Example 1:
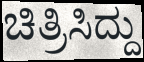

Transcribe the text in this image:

ಚಿತ್ರಿಸಿದ್ದು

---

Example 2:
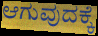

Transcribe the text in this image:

ಆಗುವುದಕ್ಕೆ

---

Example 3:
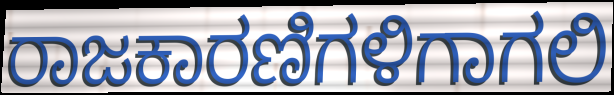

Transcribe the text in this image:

ರಾಜಕಾರಣಿಗಳಿಗಾಗಲಿ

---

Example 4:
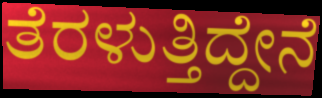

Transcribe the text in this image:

ತೆರಳುತ್ತಿದ್ದೇನೆ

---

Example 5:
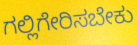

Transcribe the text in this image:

ಗಲ್ಲಿಗೇರಿಸಬೇಕು